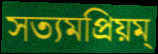
সত্যমপ্রিয়ম্